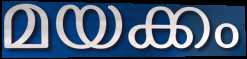
മയക്കം